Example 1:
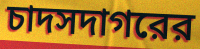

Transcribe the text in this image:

চাদসদাগরের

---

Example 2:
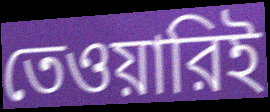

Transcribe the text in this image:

তেওয়ারিই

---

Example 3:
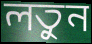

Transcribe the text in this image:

লতুন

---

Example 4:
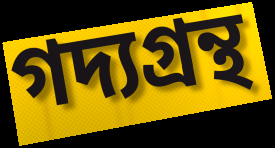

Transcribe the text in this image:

গদ্যগ্রন্থ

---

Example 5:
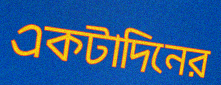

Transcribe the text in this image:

একটাদিনের